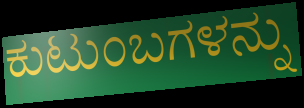
ಕುಟುಂಬಗಳನ್ನು